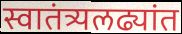
स्वातंत्र्यलढ्यांत